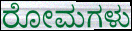
ರೋಮಗಳು